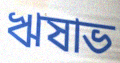
ঋষাভ